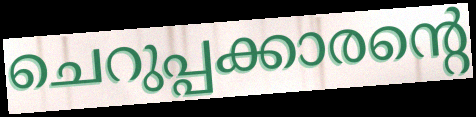
ചെറുപ്പക്കാരന്റെ